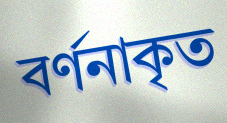
বর্ণনাকৃত